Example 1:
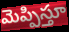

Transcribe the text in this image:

మెప్పిస్తూ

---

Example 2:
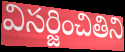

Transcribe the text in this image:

విసర్జించితిని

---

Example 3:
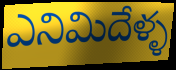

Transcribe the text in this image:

ఎనిమిదేళ్ళ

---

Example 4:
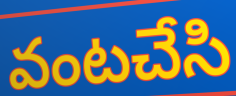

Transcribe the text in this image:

వంటచేసి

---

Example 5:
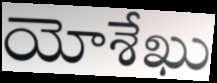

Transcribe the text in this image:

యోశేఖు